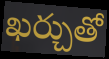
ఖర్చుతో